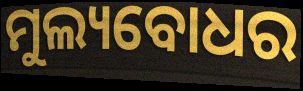
ମୁଲ୍ୟବୋଧର